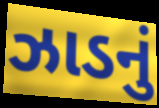
ઝાડનું